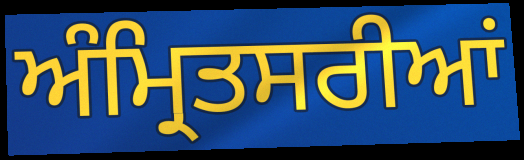
ਅੰਮ੍ਰਿਤਸਰੀਆਂ